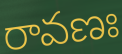
రావణః